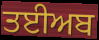
ਤਈਅਬ